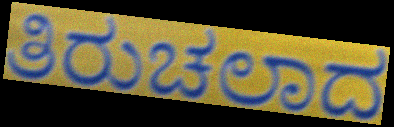
ತಿರುಚಲಾದ